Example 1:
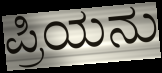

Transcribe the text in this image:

ಪ್ರಿಯನು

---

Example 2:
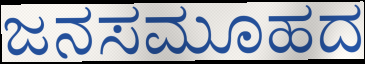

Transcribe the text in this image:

ಜನಸಮೂಹದ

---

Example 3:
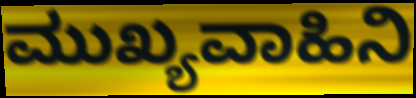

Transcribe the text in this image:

ಮುಖ್ಯವಾಹಿನಿ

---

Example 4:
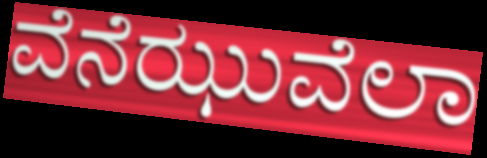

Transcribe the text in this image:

ವೆನೆಝುವೆಲಾ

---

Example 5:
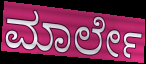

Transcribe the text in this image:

ಮಾರ್ಲೇ